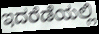
ಇದರೆಡೆಯಲ್ಲಿ